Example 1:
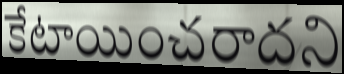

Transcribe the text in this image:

కేటాయించరాదని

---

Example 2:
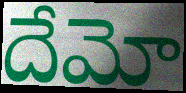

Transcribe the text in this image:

దేమో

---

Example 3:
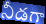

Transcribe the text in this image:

నీడగా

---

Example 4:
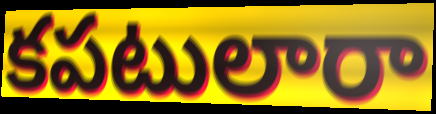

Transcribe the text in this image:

కపటులారా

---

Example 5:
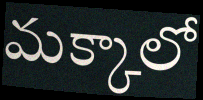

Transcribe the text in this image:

మక్కాలో